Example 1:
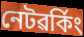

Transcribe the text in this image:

নেটৱৰ্কিং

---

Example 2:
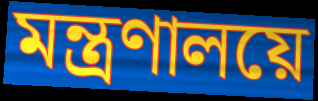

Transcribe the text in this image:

মন্ত্ৰণালয়ে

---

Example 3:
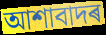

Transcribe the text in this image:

আশাবাদৰ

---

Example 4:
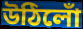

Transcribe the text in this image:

উঠিলোঁ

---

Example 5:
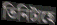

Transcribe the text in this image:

তিনিটাহে